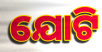
ଯୋଟି